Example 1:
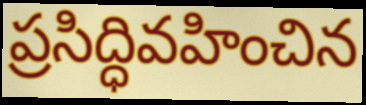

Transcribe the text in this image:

ప్రసిద్ధివహించిన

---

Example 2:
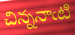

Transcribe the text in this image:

చిన్ననాఁటి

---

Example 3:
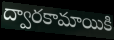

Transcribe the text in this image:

ద్వారకామాయికి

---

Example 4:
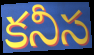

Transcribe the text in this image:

కనీస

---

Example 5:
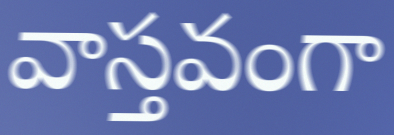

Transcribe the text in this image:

వాస్తవంగా